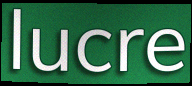
lucre